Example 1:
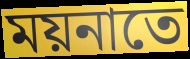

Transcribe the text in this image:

ময়নাতে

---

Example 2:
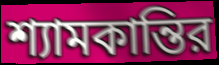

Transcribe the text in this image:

শ্যামকান্তির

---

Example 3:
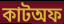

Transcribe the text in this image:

কাটঅফ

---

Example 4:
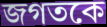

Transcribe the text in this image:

জগতকে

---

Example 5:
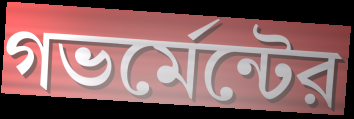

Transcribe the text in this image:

গভর্মেন্টের